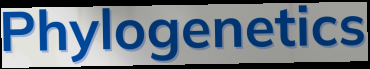
Phylogenetics